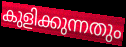
കുളിക്കുന്നതും